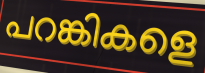
പറങ്കികളെ